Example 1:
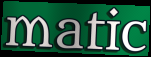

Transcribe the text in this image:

matic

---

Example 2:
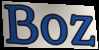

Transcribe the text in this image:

Boz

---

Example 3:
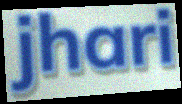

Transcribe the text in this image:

jhari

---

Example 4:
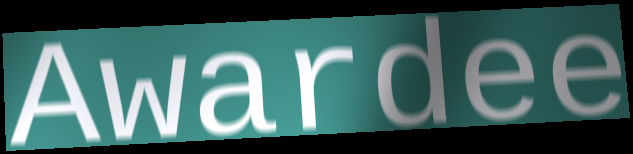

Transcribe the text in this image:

Awardee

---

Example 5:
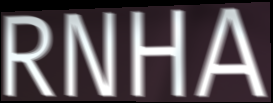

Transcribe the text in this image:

RNHA